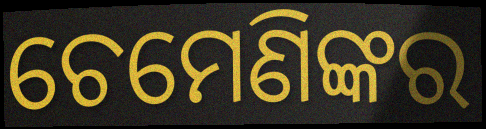
ଚେମେଣିଙ୍କର